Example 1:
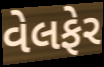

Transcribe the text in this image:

વેલફેર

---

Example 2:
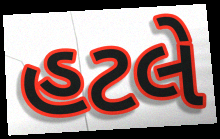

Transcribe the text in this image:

હટલે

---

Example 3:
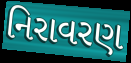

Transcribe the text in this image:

નિરાવરણ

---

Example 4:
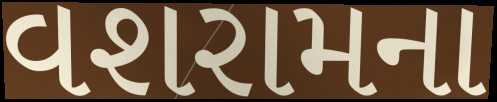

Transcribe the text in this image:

વશરામના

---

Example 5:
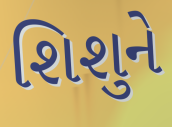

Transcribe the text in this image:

શિશુને